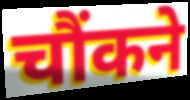
चौंकने